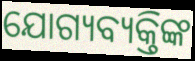
ଯୋଗ୍ୟବ୍ୟକ୍ତିଙ୍କ